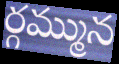
ర్గమ్మున